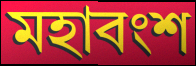
মহাবংশ